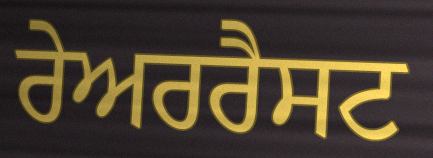
ਰੇਅਰਰੈਸਟ